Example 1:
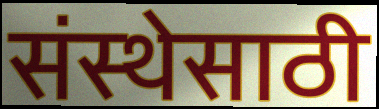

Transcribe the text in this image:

संस्थेसाठी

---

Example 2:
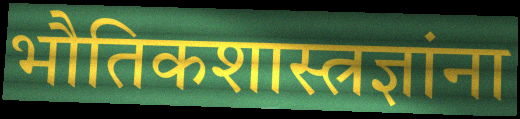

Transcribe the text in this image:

भौतिकशास्त्रज्ञांना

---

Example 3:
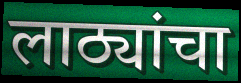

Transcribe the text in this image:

लाठ्यांचा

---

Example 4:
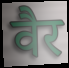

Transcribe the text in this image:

वैर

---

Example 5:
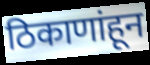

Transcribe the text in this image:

ठिकाणांहून